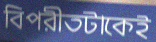
বিপরীতটাকেই